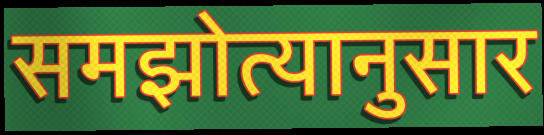
समझोत्यानुसार